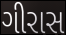
ગીરાસ